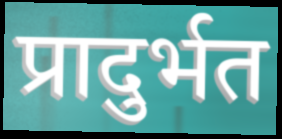
प्रादुर्भत